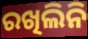
ରଖିଲିନି